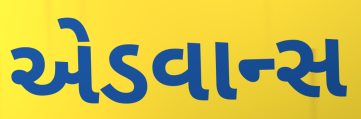
એડવાન્સ